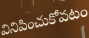
వినిపించుకోవటం